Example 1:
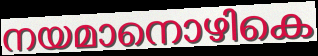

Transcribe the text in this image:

നയമാനൊഴികെ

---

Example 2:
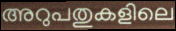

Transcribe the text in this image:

അറുപതുകളിലെ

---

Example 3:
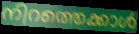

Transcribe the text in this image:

നിറത്തെക്കാൾ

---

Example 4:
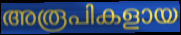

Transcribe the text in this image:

അരൂപികളായ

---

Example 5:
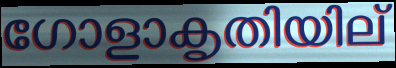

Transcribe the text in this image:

ഗോളാകൃതിയില്